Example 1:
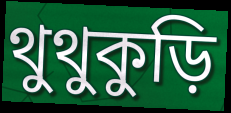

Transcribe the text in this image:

থুথুকুড়ি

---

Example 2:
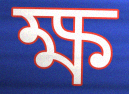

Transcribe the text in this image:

ক্ষ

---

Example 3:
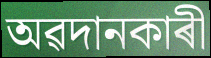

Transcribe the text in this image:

অৱদানকাৰী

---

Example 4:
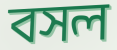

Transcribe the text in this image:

বসল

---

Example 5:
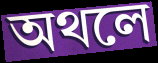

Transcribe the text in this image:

অথলে